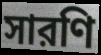
সারণি